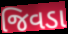
જિવડા